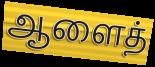
ஆளைத்